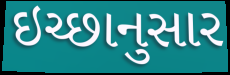
ઇચ્છાનુસાર